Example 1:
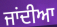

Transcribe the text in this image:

ਜਾਂਦੀਆ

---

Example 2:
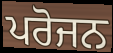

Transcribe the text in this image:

ਪਰੋਜਨ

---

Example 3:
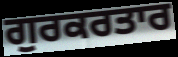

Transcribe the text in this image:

ਗੁਰਕਰਤਾਰ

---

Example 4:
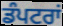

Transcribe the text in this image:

ਡੰਪਟਰਾਂ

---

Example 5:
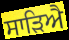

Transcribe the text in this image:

ਸਾੜਿਐ